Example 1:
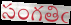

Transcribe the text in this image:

సంగతిఁ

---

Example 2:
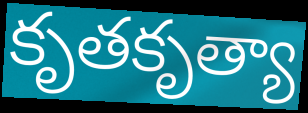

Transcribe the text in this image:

కృతకృత్యా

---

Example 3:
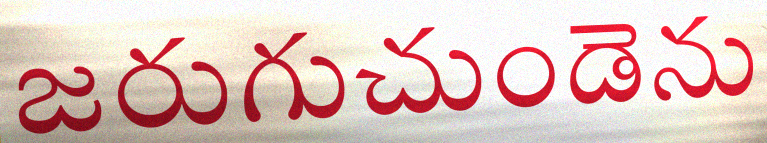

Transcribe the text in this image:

జరుగుచుండెను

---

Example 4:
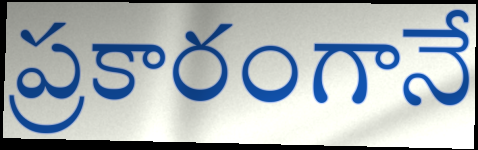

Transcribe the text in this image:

ప్రకారంగానే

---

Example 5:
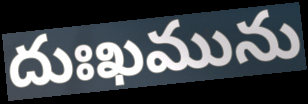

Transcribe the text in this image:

దుఃఖమును